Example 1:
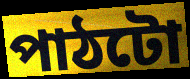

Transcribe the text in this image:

পাঠটো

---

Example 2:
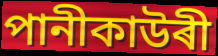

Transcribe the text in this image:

পানীকাউৰী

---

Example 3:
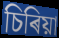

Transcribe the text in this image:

চিৰিয়া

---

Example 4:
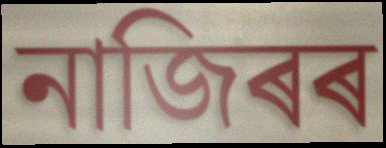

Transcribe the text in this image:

নাজিৰৰ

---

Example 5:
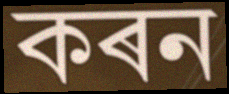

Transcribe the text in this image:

কৰন